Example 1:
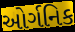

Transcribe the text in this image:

ઓર્ગનિક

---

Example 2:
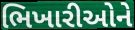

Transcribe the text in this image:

ભિખારીઓને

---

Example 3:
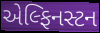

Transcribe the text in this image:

એલ્ફિનસ્ટન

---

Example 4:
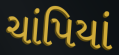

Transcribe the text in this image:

ચાંપિયાં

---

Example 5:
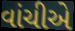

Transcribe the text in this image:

વાંચીએ